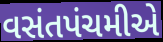
વસંતપંચમીએ